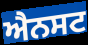
ਐਨਸਟ